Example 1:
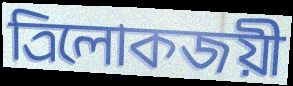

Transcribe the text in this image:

ত্রিলোকজয়ী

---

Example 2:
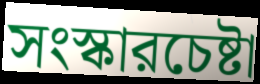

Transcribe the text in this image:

সংস্কারচেষ্টা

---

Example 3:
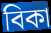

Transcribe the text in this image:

বিকা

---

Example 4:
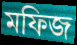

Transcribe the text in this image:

মফিজ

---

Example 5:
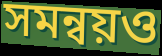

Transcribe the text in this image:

সমন্বয়ও